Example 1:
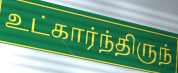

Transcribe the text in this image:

உட்கார்ந்திருந்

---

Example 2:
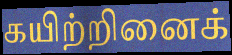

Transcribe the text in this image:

கயிற்றினைக்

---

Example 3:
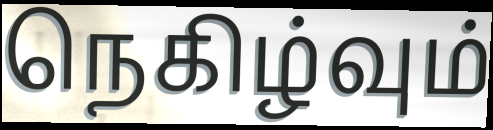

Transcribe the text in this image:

நெகிழ்வும்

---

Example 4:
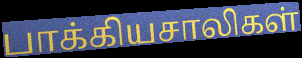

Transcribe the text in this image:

பாக்கியசாலிகள்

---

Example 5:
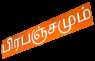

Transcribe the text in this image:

பிரபஞ்சமும்